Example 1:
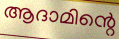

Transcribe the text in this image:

ആദാമിന്റെ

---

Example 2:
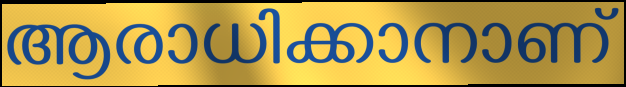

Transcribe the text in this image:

ആരാധിക്കാനാണ്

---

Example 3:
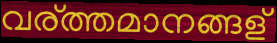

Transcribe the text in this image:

വര്ത്തമാനങ്ങള്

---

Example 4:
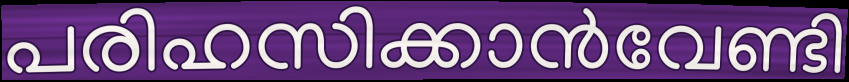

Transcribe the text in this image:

പരിഹസിക്കാൻവേണ്ടി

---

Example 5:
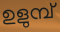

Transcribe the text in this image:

ഉളുമ്പ്